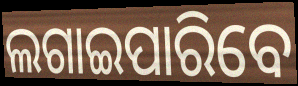
ଲଗାଇପାରିବେ